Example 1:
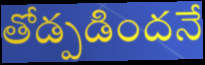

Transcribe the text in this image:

తోడ్పడిందనే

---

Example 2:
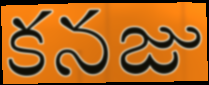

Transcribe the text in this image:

కనజు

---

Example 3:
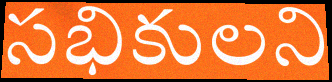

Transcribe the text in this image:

సభికులని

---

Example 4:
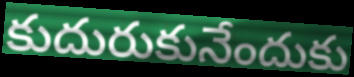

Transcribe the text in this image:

కుదురుకునేందుకు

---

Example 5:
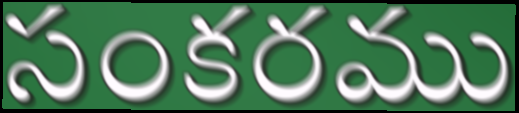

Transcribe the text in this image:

సంకరము